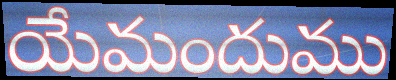
యేమందుము